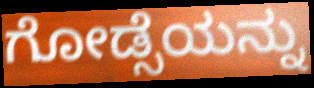
ಗೋಡ್ಸೆಯನ್ನು